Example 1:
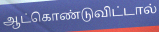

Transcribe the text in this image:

ஆட்கொண்டுவிட்டால்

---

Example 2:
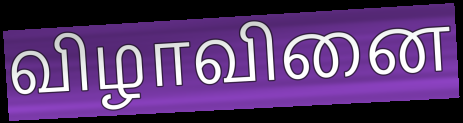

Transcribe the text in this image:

விழாவினை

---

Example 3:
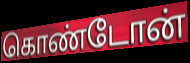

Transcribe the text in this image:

கொண்டோன்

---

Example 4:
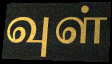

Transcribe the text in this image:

வுள்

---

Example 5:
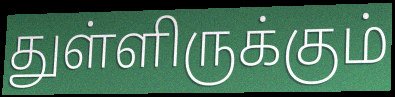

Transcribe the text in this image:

துள்ளிருக்கும்